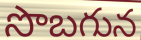
సొబగున